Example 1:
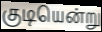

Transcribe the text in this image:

குடியென்று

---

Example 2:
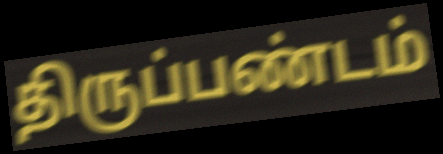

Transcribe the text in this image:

திருப்பண்டம்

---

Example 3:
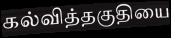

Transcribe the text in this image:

கல்வித்தகுதியை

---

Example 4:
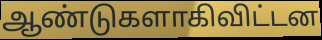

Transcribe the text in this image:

ஆண்டுகளாகிவிட்டன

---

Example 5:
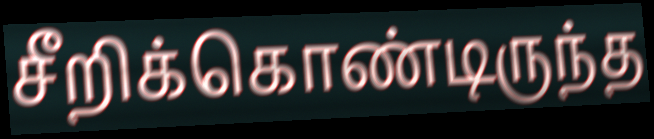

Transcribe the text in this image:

சீறிக்கொண்டிருந்த